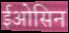
ईओसिन